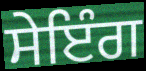
ਸੇਇੰਗ